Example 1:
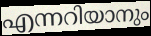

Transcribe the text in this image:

എന്നറിയാനും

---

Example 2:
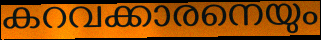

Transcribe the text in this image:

കറവക്കാരനെയും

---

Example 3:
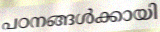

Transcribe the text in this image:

പഠനങ്ങൾക്കായി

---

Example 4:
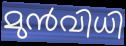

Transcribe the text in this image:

മുൻവിധി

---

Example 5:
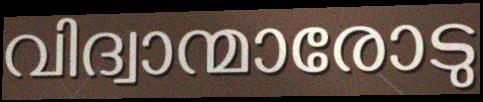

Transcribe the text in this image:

വിദ്വാന്മാരോടു